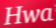
Hwa